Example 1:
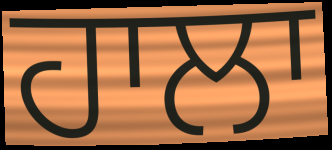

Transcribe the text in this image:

ਹਾਲਾ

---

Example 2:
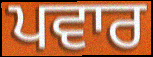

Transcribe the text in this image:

ਪਵਾਰ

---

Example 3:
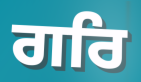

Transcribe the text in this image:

ਗਰਿ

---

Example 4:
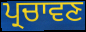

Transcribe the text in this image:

ਪ੍ਰਚਾਵਣ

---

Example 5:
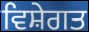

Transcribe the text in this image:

ਵਿਸ਼ੇਗਤ